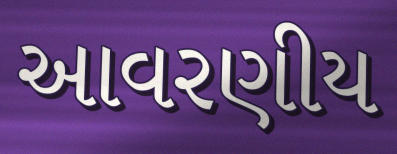
આવરણીય